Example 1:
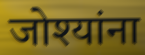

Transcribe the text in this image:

जोश्यांना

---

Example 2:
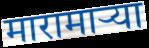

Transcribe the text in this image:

मारामार्‍या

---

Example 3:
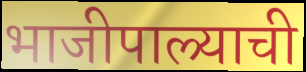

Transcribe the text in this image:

भाजीपाल्याची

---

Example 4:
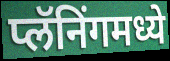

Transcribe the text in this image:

प्लॅनिंगमध्ये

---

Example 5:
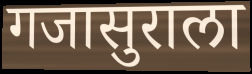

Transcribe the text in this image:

गजासुराला